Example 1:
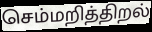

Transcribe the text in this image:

செம்மறித்திறல்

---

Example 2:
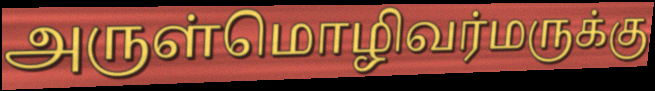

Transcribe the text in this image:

அருள்மொழிவர்மருக்கு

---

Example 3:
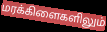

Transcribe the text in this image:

மரக்கிளைகளிலும்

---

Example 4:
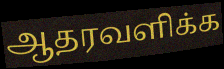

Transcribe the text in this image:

ஆதரவளிக்க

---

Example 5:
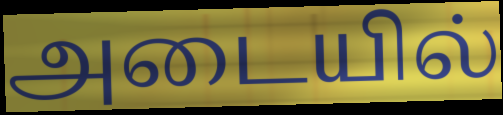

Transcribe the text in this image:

அடையில்